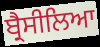
ਬ੍ਰੈਸੀਲਿਆ